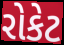
રોકેટ